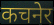
कचनेर